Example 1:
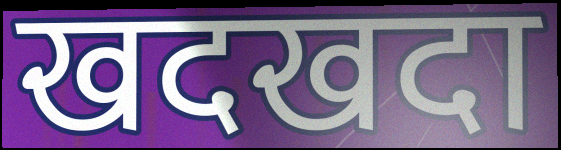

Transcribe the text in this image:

खदखदा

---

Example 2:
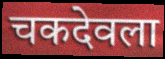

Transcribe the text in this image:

चकदेवला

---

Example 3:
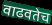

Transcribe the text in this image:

वाढवतेच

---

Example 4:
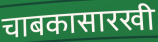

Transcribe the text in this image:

चाबकासारखी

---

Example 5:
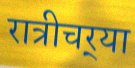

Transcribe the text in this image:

रात्रीचर्या